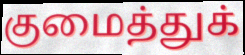
குமைத்துக்